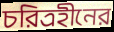
চরিত্রহীনের